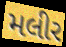
મલીર